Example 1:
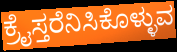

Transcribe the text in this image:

ಕ್ರೈಸ್ತರೆನಿಸಿಕೊಳ್ಳುವ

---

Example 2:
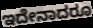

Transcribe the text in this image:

ಇದೇನಾದರೂ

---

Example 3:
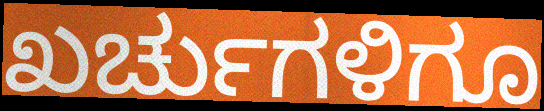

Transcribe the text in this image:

ಖರ್ಚುಗಳಿಗೂ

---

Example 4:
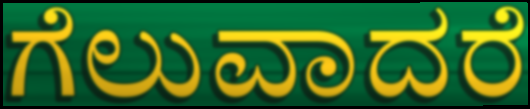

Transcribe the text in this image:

ಗೆಲುವಾದರೆ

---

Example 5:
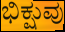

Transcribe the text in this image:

ಭಿಕ್ಷುವು